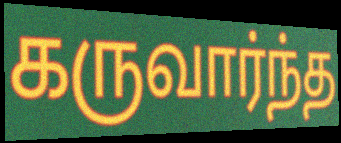
கருவார்ந்த